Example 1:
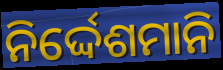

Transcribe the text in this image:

ନିର୍ଦ୍ଦେଶମାନି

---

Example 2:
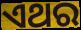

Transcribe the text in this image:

ଏଥର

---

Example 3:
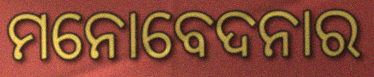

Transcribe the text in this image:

ମନୋବେଦନାର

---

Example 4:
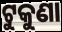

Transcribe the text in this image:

ଟୁକୁଣା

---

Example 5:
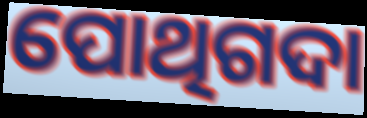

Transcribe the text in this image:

ପୋଥିଗଦା